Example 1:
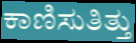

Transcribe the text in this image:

ಕಾಣಿಸುತಿತ್ತು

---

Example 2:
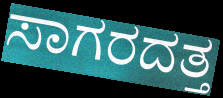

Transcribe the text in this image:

ಸಾಗರದತ್ತ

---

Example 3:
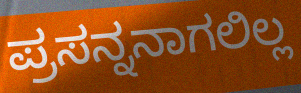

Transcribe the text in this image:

ಪ್ರಸನ್ನನಾಗಲಿಲ್ಲ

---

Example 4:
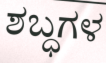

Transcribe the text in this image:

ಶಬ್ಧಗಳ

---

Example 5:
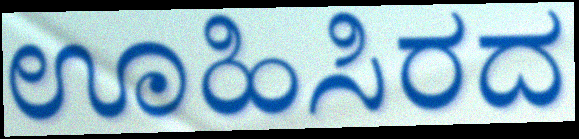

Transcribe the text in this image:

ಊಹಿಸಿರದ